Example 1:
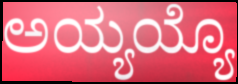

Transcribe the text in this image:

ಅಯ್ಯಯ್ಯೊ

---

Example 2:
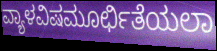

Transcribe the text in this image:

ವ್ಯಾಳವಿಷಮೂರ್ಛಿತೆಯಲಾ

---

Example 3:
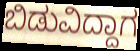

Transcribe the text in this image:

ಬಿಡುವಿದ್ದಾಗ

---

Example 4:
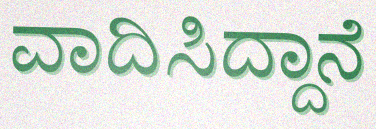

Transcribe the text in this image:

ವಾದಿಸಿದ್ದಾನೆ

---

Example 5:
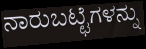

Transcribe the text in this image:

ನಾರುಬಟ್ಟೆಗಳನ್ನು